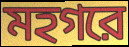
মহগরে